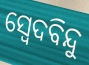
ସ୍ୱେଦବିନ୍ଦୁ